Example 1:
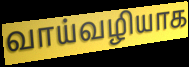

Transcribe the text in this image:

வாய்வழியாக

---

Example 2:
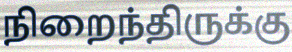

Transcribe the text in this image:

நிறைந்திருக்கு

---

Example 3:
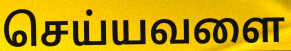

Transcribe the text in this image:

செய்யவளை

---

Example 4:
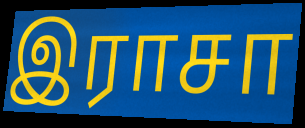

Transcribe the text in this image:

இராசா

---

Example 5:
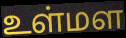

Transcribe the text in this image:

உள்மள